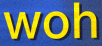
woh